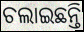
ଚଲାଇଛନ୍ତି